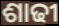
ଶାଢୀ